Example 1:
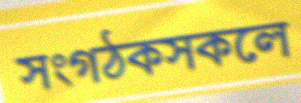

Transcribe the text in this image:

সংগঠকসকলে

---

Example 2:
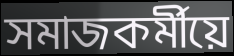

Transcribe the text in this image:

সমাজকৰ্মীয়ে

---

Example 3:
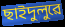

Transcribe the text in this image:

ছাইদুলুৱে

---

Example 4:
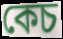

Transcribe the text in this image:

কেচ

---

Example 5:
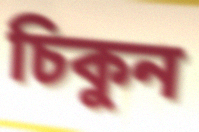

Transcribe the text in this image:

চিকুন